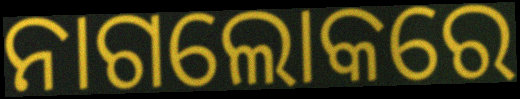
ନାଗଲୋକରେ